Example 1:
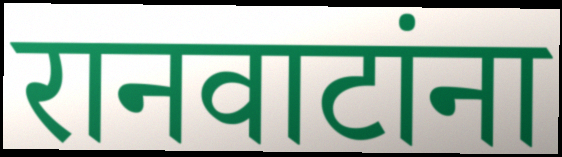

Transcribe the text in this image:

रानवाटांना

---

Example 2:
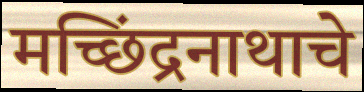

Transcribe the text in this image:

मच्छिंद्रनाथाचे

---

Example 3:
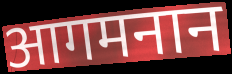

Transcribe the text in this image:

आगमनान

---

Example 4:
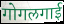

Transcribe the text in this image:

गोगलगाई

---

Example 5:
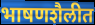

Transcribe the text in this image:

भाषणशैलीत